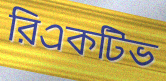
রিএকটিভ